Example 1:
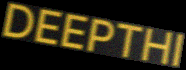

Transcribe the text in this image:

DEEPTHI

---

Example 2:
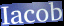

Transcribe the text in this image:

Iacob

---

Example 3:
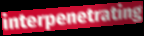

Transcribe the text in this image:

interpenetrating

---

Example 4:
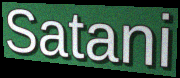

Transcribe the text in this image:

Satani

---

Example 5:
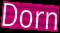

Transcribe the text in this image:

Dorn